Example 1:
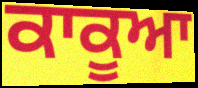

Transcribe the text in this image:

ਕਾਕੂਆ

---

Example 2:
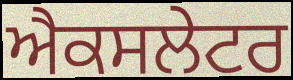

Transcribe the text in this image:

ਐਕਸਲੇਟਰ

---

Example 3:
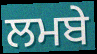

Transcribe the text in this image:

ਲਮਬੇ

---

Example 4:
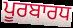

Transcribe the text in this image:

ਪੂਰਬਾਰਧ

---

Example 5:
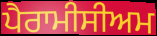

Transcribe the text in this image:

ਪੈਰਾਮੀਸੀਅਮ